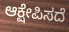
ಆಕ್ಷೇಪಿಸದೆ